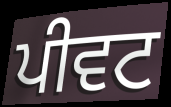
ਪੀਵਟ